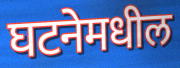
घटनेमधील